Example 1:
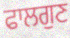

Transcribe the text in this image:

ਫਾਲਗੁਣ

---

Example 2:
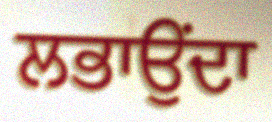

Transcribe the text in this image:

ਲਭਾਉਂਦਾ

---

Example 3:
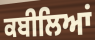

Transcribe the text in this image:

ਕਬੀਲਿਆਂ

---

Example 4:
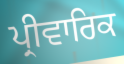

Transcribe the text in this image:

ਪ੍ਰੀਵਾਰਿਕ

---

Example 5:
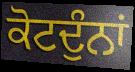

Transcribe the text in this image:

ਕੋਟਦੁੰਨਾਂ